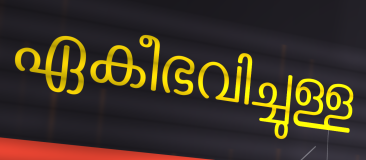
ഏകീഭവിച്ചുള്ള